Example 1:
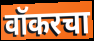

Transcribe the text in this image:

वॉकरचा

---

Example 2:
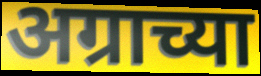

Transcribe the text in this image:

अग्राच्या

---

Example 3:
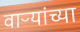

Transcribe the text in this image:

वाऱ्यांच्या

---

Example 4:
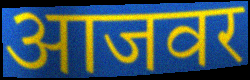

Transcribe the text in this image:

आजवर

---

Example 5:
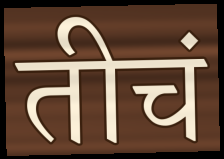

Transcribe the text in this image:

तीचं